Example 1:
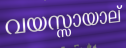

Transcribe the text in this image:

വയസ്സായാല്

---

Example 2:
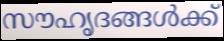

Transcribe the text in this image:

സൗഹൃദങ്ങൾക്ക്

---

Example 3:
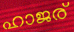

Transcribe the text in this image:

ഹാജര്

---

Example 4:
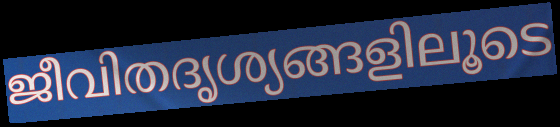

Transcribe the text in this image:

ജീവിതദൃശ്യങ്ങളിലൂടെ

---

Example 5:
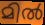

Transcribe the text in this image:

മിൽ